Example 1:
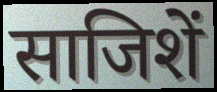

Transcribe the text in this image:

साजिशें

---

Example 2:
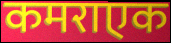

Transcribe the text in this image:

कमराएक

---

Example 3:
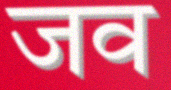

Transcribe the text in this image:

जव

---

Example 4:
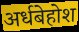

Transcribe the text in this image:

अर्धबेहोश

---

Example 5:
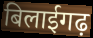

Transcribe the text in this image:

बिलाईगढ़